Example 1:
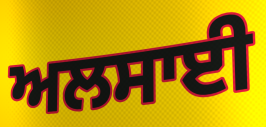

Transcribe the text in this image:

ਅਲਸਾਈ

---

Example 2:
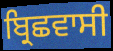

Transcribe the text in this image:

ਬ੍ਰਿਛਵਾਸੀ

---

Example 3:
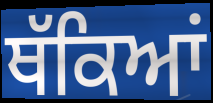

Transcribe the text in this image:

ਥੱਕਿਆਂ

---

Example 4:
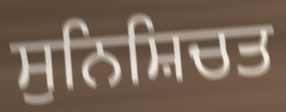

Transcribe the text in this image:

ਸੁਨਿਸ਼ਿਚਤ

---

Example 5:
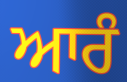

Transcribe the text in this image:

ਆਰੰ